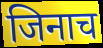
जिनाच